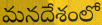
మనదేశంలో